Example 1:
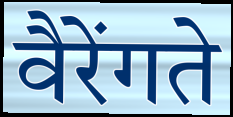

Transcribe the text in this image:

वैरेंगते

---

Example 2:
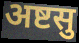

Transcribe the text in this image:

अष्टसु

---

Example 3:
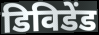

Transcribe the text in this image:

डिविडेंड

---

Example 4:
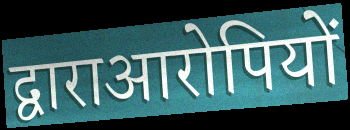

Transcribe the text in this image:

द्वाराआरोपियों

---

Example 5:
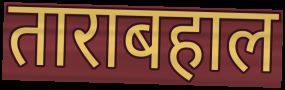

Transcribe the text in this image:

ताराबहाल